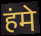
हंमे